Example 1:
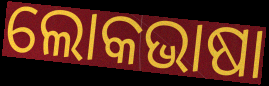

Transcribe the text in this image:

ଲୋକଭାଷା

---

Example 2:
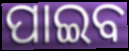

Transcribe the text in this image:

ପାଇବ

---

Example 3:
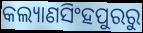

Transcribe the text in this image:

କଲ୍ୟାଣସିଂହପୁରରୁ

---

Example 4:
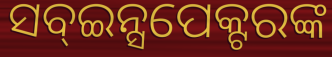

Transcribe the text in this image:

ସବ୍ଇନ୍ସପେକ୍ଟରଙ୍କ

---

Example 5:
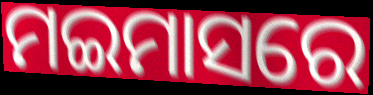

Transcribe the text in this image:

ମଇମାସରେ